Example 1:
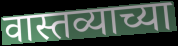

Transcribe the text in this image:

वास्तव्याच्या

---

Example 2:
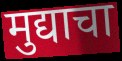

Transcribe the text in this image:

मुद्याचा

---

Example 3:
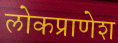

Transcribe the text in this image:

लोकप्राणेश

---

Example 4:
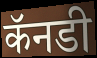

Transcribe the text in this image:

कॅनडी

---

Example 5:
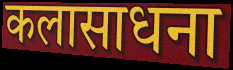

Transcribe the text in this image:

कलासाधना